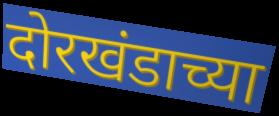
दोरखंडाच्या